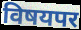
विषयपर